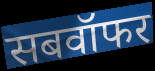
सबवॉफर